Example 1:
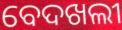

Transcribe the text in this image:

ବେଦଖଲୀ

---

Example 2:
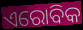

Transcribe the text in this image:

ଏରୋବିକ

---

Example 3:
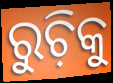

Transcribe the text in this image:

ରୁଚ଼ିକୁ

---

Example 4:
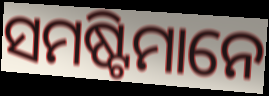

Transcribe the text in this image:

ସମଷ୍ଟିମାନେ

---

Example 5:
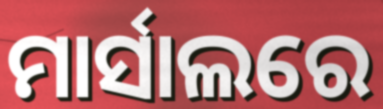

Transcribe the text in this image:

ମାର୍ସାଲରେ